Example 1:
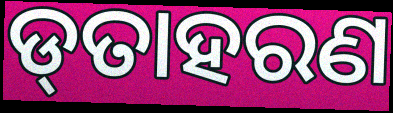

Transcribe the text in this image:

ଡ୍‌ତାହରଣ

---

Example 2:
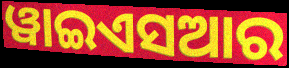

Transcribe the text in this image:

ୱାଇଏସଆର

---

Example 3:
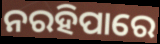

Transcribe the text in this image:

ନରହିପାରେ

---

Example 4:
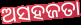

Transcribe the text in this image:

ଅସହଜତା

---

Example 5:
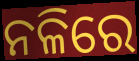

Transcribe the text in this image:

ନଳିରେ